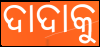
ଦାଦାକୁ